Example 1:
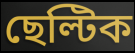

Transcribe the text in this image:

ছেল্টিক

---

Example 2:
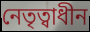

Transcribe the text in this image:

নেতৃত্বাধীন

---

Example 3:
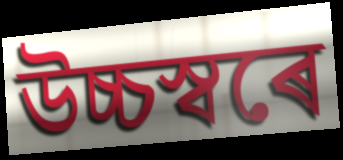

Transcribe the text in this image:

উচ্চস্বৰে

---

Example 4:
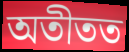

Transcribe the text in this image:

অতীতত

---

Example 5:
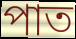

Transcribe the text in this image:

পাত